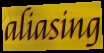
aliasing